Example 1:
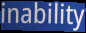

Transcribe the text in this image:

inability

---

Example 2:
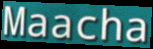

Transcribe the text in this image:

Maacha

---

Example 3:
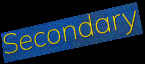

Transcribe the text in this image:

Secondary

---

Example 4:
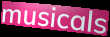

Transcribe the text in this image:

musicals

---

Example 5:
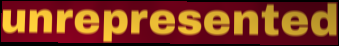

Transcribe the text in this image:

unrepresented